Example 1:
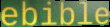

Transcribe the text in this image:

ebible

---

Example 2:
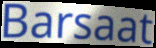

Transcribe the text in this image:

Barsaat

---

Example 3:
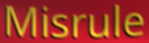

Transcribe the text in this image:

Misrule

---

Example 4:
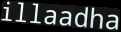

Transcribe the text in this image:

illaadha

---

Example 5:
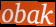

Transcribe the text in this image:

obak